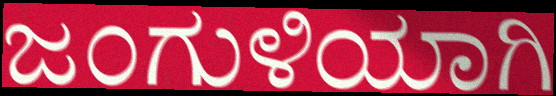
ಜಂಗುಳಿಯಾಗಿ